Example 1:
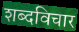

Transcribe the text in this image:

शब्दविचार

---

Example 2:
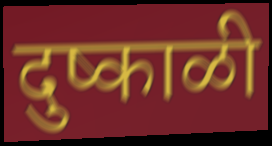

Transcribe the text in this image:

दुष्काळी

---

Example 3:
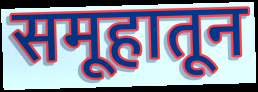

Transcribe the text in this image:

समूहातून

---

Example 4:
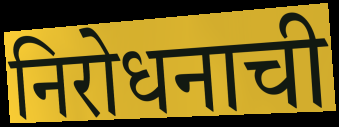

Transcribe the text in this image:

निरोधनाची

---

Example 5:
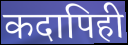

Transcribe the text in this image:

कदापिही